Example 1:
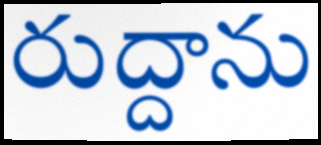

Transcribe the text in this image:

రుద్దాను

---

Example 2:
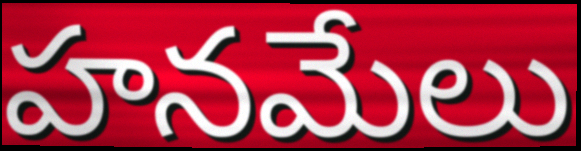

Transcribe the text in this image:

హనమేలు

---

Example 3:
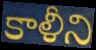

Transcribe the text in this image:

కాళీని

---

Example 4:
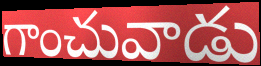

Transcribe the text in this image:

గాంచువాడు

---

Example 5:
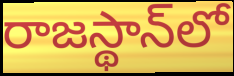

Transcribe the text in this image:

రాజస్థాన్‌లో